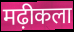
मढ़ीकला